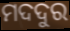
ମଦଦୁର